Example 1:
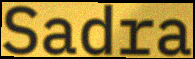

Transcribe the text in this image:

Sadra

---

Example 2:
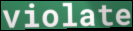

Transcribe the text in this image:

violate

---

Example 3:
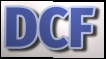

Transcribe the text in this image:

DCF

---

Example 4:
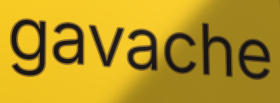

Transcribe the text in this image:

gavache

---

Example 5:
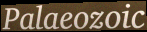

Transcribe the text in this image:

Palaeozoic